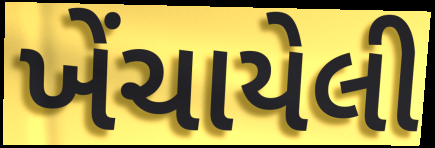
ખેંચાયેલી